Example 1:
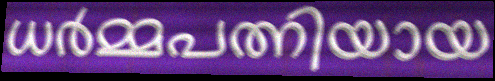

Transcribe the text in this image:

ധർമ്മപത്നിയായ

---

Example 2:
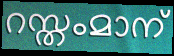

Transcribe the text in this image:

റസ്തംമാന്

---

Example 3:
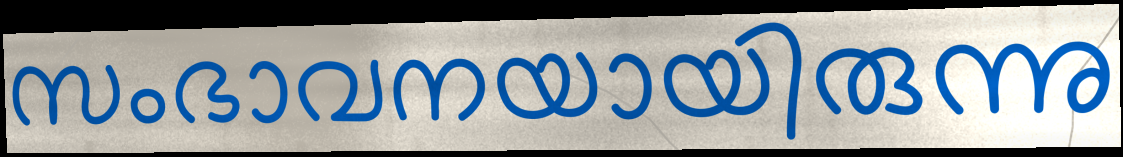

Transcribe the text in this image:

സംഭാവനയായിരുന്നു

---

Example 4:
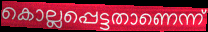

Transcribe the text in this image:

കൊല്ലപ്പെട്ടതാണെന്ന്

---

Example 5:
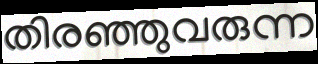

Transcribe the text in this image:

തിരഞ്ഞുവരുന്ന